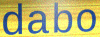
dabo